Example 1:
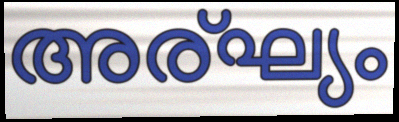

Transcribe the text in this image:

അര്ഘ്യം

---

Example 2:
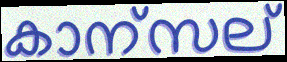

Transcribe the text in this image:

കാന്സല്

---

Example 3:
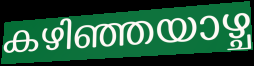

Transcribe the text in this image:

കഴിഞ്ഞയാഴ്ച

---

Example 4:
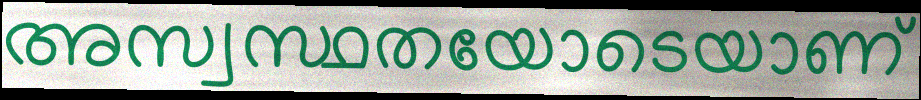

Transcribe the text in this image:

അസ്വസ്ഥതയോടെയാണ്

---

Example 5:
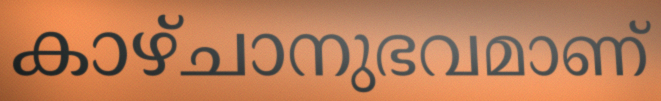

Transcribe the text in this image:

കാഴ്ചാനുഭവമാണ്